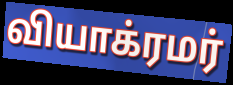
வியாக்ரமர்